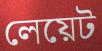
লেয়েট